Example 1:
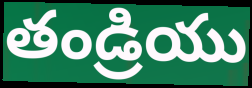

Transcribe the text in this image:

తండ్రియు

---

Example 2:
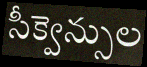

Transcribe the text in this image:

సీక్వెన్సుల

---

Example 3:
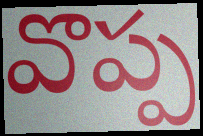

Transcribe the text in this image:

వొప్ప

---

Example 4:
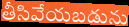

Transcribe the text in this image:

తీసివేయబడును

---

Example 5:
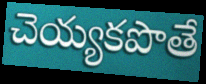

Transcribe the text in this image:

చెయ్యకపొతే